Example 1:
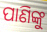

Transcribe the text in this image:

ପାଣିଙ୍କୁ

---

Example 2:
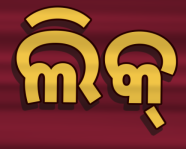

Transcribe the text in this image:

ଲିକ୍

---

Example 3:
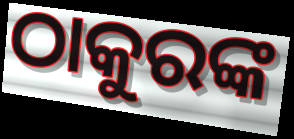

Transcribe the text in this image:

ଠାକୁରଙ୍କ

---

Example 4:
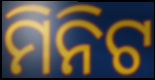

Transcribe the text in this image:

ମିନିଟ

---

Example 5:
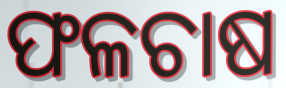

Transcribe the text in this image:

ଫଳଚାଷ